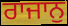
ਰਾਜਾਨੁ